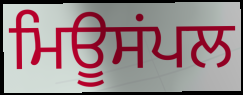
ਮਿਊਸਂਪਲ